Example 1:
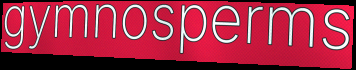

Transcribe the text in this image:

gymnosperms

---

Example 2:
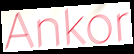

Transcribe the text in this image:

Ankor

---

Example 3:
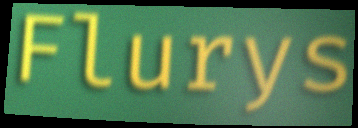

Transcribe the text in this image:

Flurys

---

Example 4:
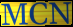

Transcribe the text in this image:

MCN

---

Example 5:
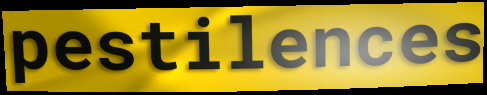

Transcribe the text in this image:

pestilences